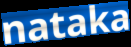
nataka